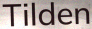
Tilden